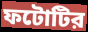
ফটোটির